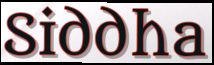
Siddha